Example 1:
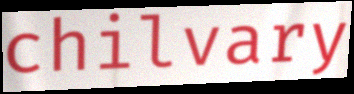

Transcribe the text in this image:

chilvary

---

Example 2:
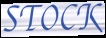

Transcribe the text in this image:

STOCK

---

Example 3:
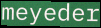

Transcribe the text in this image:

meyeder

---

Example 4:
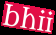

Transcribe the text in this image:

bhii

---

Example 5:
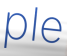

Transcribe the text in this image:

ple